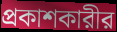
প্রকাশকারীর